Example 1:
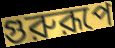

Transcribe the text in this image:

গুরুরূপে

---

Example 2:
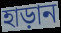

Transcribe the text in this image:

হাড়ান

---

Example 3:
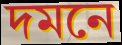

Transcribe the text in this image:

দমনে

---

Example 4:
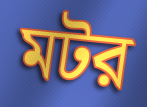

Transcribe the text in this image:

মটর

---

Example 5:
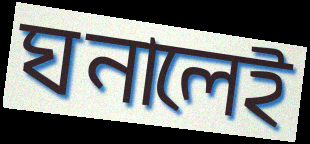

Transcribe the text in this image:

ঘনালেই